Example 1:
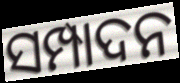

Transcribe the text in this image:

ସମ୍ପାଦନ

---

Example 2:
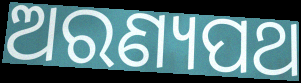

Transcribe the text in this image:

ଅରଣ୍ୟପଥ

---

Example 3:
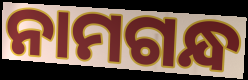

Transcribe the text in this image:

ନାମଗନ୍ଧ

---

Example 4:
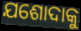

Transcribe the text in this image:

ଯଶୋଦାକୁ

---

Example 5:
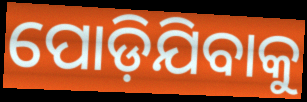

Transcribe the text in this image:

ପୋଡ଼ିଯିବାକୁ